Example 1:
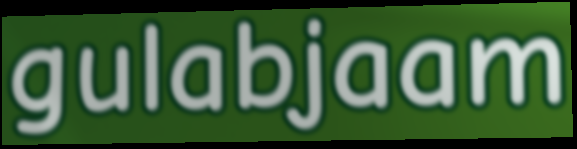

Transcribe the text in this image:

gulabjaam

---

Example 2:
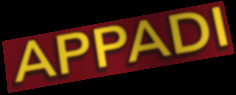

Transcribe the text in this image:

APPADI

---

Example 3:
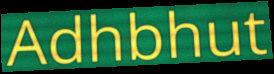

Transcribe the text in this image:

Adhbhut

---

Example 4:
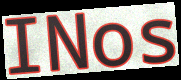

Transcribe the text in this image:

INos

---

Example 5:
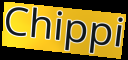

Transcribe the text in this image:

Chippi